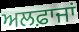
ਅਲਫ਼ਾਜਾਂ